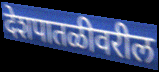
देशपातळीवरील